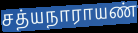
சத்யநாராயண்